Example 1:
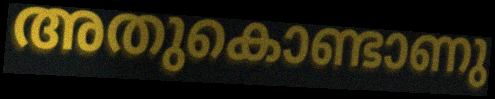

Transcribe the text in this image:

അതുകൊണ്ടാണു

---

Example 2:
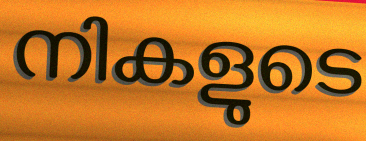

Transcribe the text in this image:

നികളുടെ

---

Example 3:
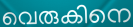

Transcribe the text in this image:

വെരുകിനെ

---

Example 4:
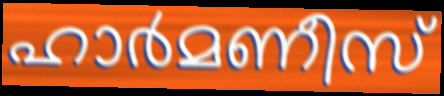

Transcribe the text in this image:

ഹാർമണീസ്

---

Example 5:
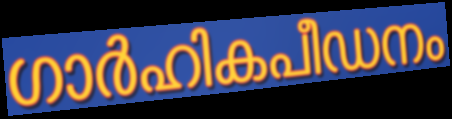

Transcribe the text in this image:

ഗാർഹികപീഡനം